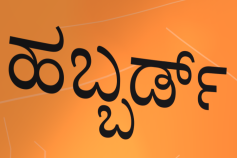
ಹಬ್ಬರ್ಡ್